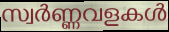
സ്വർണ്ണവളകൾ